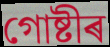
গোষ্টীৰ